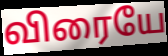
விரையே